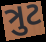
ત્રુટ